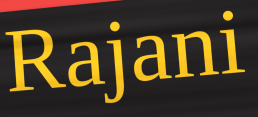
Rajani